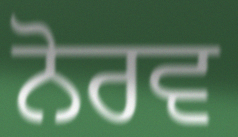
ਨੋਰਵ